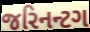
જરિનન્ટગ